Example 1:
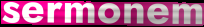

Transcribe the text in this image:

sermonem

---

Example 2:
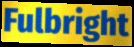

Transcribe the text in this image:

Fulbright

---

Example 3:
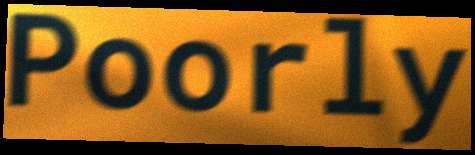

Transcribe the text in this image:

Poorly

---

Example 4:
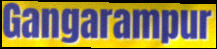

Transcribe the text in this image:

Gangarampur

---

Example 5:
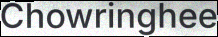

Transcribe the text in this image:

Chowringhee